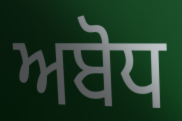
ਅਬੋਧ